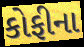
કોફીના